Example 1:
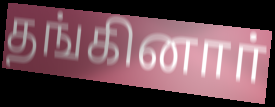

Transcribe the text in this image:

தங்கினார்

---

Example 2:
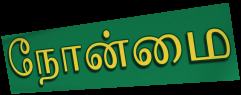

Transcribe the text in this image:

நோன்மை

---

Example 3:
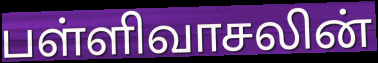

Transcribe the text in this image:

பள்ளிவாசலின்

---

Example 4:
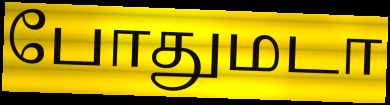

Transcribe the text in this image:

போதுமடா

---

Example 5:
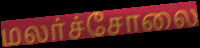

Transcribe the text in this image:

மலர்ச்சோலை